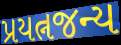
પ્રયત્નજન્ય